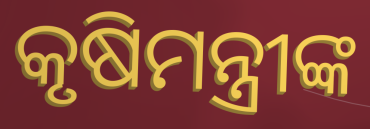
କୃଷିମନ୍ତ୍ରୀଙ୍କ